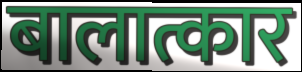
बालात्कार